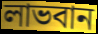
লাভবান